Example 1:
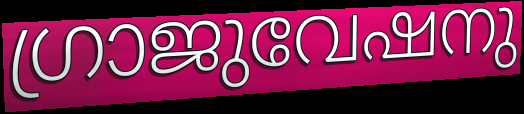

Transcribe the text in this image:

ഗ്രാജുവേഷനു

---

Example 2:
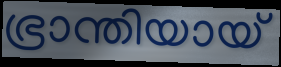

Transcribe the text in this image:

ഭ്രാന്തിയായ്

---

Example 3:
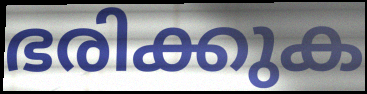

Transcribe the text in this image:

ഭരിക്കുക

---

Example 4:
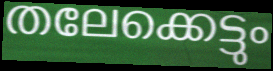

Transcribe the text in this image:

തലേക്കെട്ടും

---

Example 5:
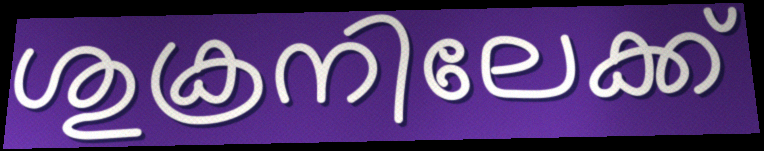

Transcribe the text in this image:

ശുക്രനിലേക്ക്